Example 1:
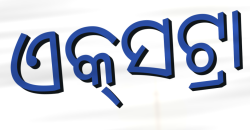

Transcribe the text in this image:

ଏକ୍‍ସଟ୍ରା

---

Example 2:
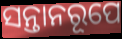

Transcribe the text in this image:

ସନ୍ତାନରୂପେ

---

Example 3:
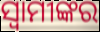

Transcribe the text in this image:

ସ୍ୱାମୀଙ୍କର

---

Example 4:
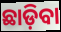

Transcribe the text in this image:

ଛାଡ଼ିବା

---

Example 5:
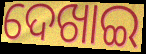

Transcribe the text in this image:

ଦେଖାଇ